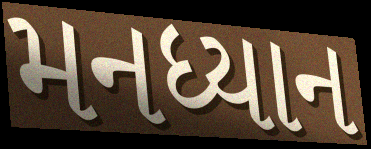
મનધ્યાન